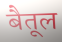
बैतूल